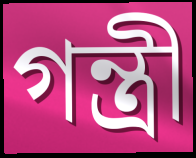
গন্ত্রী